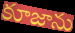
కూజాను